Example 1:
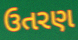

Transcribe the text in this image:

ઉતરણ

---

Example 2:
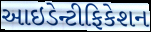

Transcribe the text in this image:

આઇડેન્ટીફિકેશન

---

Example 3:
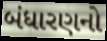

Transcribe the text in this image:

બંધારણનો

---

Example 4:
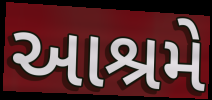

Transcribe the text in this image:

આશ્રમે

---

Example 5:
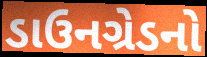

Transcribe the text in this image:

ડાઉનગ્રેડનો